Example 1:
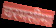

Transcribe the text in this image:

चरमसीमा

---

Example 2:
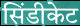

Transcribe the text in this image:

सिंडीकेट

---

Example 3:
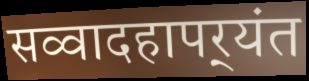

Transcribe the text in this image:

सव्वादहापर्यंत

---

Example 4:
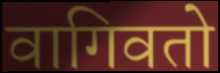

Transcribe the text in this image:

वागिवतो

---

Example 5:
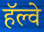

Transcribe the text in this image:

हॅल्वे